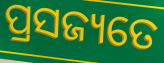
ପ୍ରସଜ୍ୟତେ